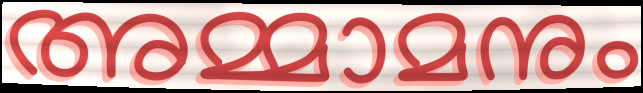
അമ്മാമനും